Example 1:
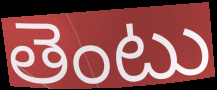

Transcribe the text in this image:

తెంటు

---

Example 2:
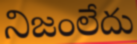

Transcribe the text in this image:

నిజంలేదు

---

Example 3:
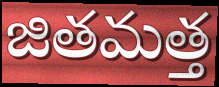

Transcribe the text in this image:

జితమత్త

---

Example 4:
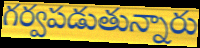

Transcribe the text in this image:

గర్వపడుతున్నారు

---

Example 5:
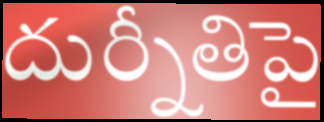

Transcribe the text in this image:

దుర్నీతిపై